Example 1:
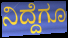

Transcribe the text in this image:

ನಿದ್ದೆಗೂ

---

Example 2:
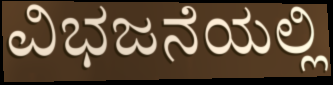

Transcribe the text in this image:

ವಿಭಜನೆಯಲ್ಲಿ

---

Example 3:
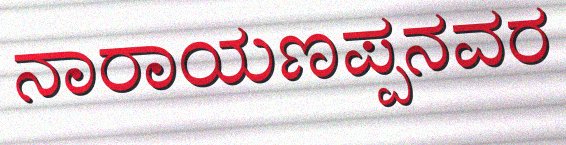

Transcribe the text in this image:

ನಾರಾಯಣಪ್ಪನವರ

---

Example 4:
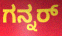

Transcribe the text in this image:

ಗನ್ನರ್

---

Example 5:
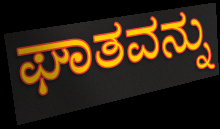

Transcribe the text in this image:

ಘಾತವನ್ನು